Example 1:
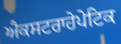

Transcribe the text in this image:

ਐਕਸਟਰਾਹੇਪੇਟਿਕ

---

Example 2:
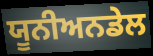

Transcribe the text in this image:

ਯੂਨੀਅਨਡੇਲ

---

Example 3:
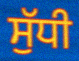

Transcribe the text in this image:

ਸੁੱਧੀ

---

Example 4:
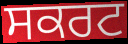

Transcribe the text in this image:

ਸਕਰਟ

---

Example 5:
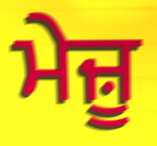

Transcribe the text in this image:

ਮੇਜ਼ੂ